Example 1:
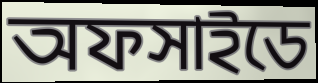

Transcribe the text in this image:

অফসাইডে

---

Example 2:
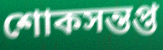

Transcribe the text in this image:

শোকসন্তপ্ত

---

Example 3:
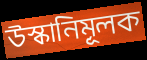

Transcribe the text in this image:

উস্কানিমূলক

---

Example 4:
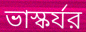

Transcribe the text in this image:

ভাস্কর্যর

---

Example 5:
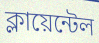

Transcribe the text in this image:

ক্লায়েন্টেল